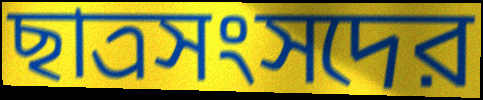
ছাত্রসংসদের